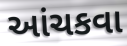
આંચકવા